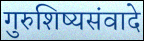
गुरुशिष्यसंवादे